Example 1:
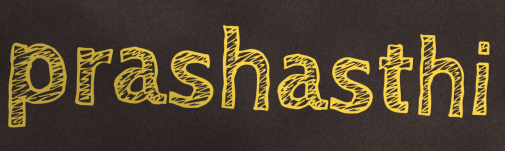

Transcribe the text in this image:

prashasthi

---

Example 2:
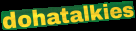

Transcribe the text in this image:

dohatalkies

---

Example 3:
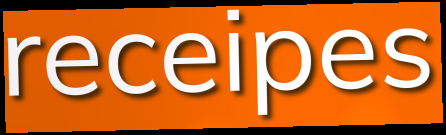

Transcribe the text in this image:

receipes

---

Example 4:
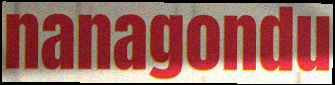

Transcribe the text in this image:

nanagondu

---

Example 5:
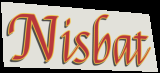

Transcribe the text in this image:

Nisbat